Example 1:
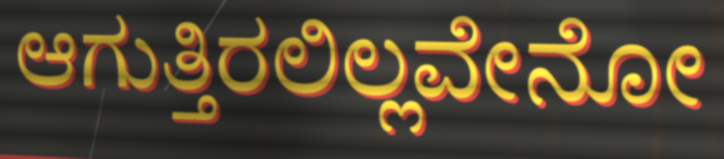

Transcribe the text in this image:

ಆಗುತ್ತಿರಲಿಲ್ಲವೇನೋ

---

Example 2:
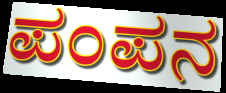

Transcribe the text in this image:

ಪಂಪನ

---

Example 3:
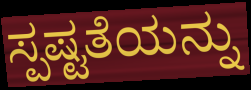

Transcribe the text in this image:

ಸ್ಪಷ್ಟತೆಯನ್ನು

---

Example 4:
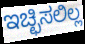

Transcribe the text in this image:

ಇಚ್ಛಿಸಲಿಲ್ಲ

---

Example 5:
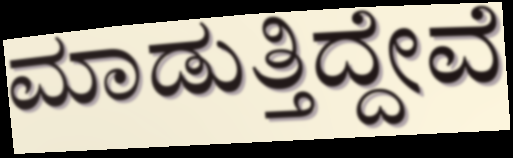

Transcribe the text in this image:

ಮಾಡುತ್ತಿದ್ದೇವೆ